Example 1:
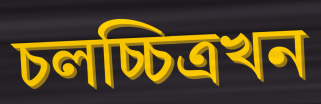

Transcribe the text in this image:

চলচ্চিত্ৰখন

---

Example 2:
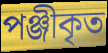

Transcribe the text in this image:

পঞ্জীকৃত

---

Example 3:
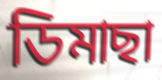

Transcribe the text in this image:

ডিমাছা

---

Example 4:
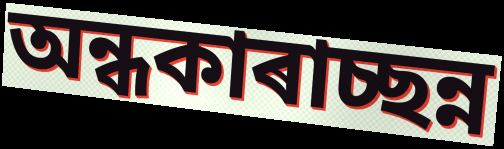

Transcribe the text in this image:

অন্ধকাৰাচ্ছন্ন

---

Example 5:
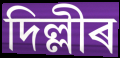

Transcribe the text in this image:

দিল্লীৰ